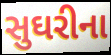
સુઘરીના